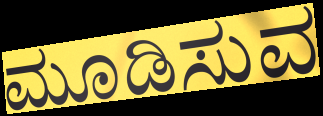
ಮೂಡಿಸುವ